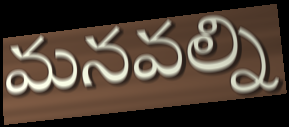
మనవల్ని